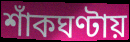
শাঁকঘণ্টায়